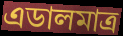
এডালমাত্ৰ